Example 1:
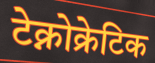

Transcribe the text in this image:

टेक्नोक्रेटिक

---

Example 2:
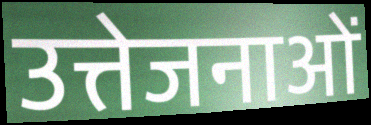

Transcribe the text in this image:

उत्तेजनाओं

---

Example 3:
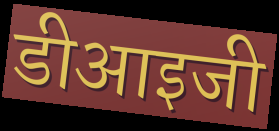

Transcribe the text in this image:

डीआइजी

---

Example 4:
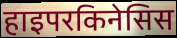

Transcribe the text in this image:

हाइपरकिनेसिस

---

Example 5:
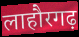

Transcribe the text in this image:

लाहौरगढ़